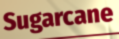
Sugarcane